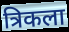
त्रिकला